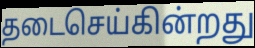
தடைசெய்கின்றது